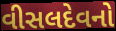
વીસલદેવનો